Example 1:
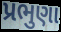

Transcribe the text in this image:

પ્રભુણા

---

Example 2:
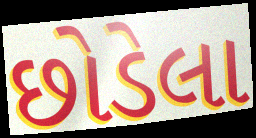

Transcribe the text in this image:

છોડેલા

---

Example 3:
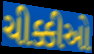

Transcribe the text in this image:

ચીક્કીઓ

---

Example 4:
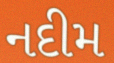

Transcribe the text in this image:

નદીમ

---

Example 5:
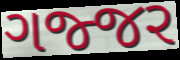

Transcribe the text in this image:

ગજ્જર